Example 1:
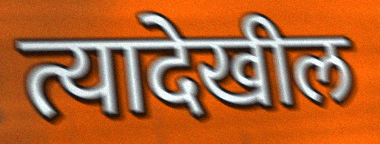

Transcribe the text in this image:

त्यादेखील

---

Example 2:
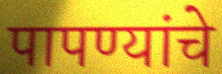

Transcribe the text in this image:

पापण्यांचे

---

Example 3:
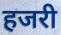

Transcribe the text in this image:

हजरी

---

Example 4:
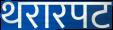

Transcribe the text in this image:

थरारपट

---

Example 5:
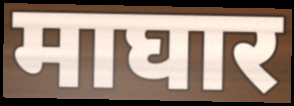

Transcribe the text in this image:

माघार